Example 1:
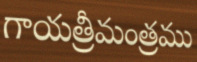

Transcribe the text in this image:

గాయత్రీమంత్రము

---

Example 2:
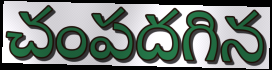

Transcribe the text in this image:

చంపదగిన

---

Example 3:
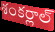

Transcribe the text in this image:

శంకర్లాల్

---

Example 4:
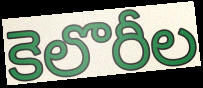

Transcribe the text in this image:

కెలొరీల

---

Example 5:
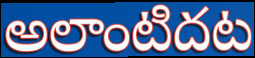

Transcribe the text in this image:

అలాంటిదట